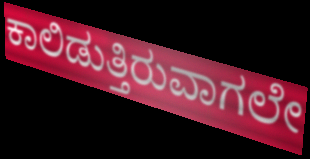
ಕಾಲಿಡುತ್ತಿರುವಾಗಲೇ